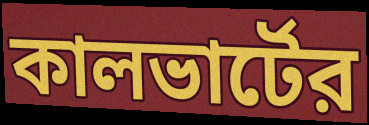
কালভার্টের